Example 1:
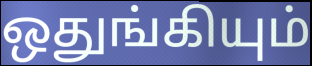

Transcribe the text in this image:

ஒதுங்கியும்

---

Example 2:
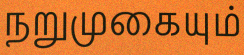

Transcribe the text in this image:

நறுமுகையும்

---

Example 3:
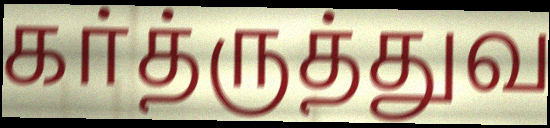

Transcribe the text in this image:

கர்த்ருத்துவ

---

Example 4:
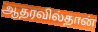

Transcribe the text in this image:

ஆதரவில்தான்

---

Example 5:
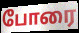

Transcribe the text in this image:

போரை